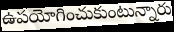
ఉపయోగించుకుంటున్నారు